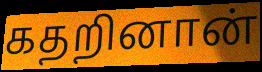
கதறினான்